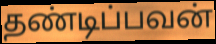
தண்டிப்பவன்